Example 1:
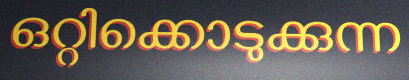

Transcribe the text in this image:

ഒറ്റിക്കൊടുക്കുന്ന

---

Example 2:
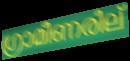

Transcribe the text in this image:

ഗ്രാമീണരില്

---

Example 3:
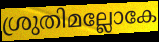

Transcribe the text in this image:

ശ്രുതിമല്ലോകേ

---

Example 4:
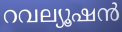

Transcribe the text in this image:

റവല്യൂഷൻ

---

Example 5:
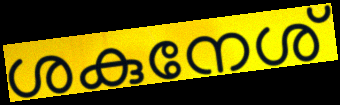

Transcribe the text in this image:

ശകുനേശ്